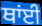
ਥਾਂਈ